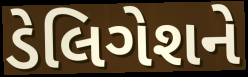
ડેલિગેશને